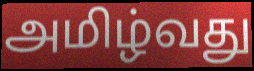
அமிழ்வது